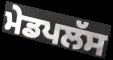
ਮੇਡਪਲੱਸ